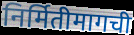
निर्मितीमागची